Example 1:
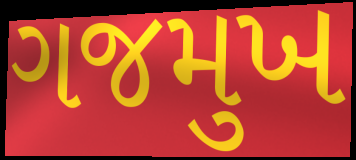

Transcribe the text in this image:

ગજમુખ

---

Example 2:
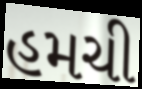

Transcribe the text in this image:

હમચી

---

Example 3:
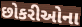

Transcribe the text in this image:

છોકરીઓના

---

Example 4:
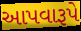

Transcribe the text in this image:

આપવારૂપે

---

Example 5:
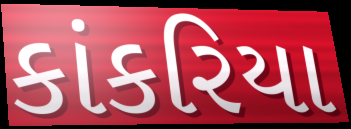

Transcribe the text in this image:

કાંકરિયા